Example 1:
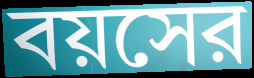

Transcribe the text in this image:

বয়সের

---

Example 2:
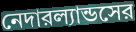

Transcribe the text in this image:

নেদারল্যান্ডসের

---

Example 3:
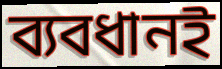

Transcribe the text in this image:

ব্যবধানই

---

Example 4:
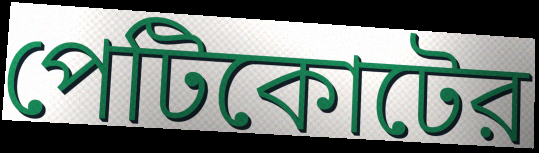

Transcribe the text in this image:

পেটিকোটের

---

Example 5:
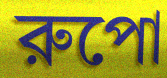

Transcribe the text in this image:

রুপো